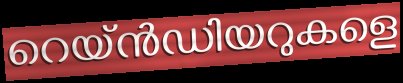
റെയ്ൻഡിയറുകളെ